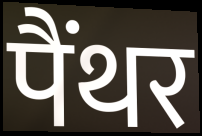
पैंथर